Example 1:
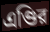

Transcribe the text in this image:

এণ্ডির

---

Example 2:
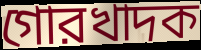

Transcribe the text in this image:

গোরখাদক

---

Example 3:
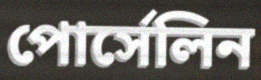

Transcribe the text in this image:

পোর্সেলিন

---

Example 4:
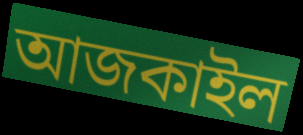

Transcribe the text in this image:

আজকাইল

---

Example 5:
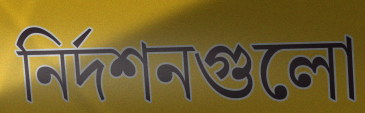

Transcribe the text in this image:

নির্দশনগুলো